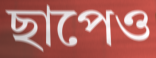
ছাপেও